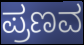
ಪ್ರಣವ